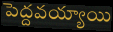
పెద్దవయ్యాయి